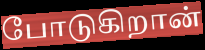
போடுகிறான்